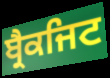
ਬ੍ਰੈਕਜਿਟ